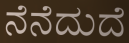
ನೆನೆದುದೆ